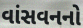
વાંસવનનો